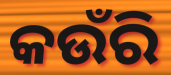
କଉଁରି